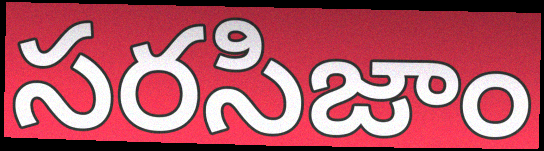
సరసిజాం